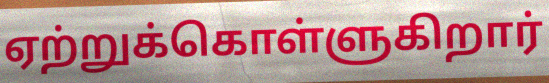
ஏற்றுக்கொள்ளுகிறார்